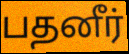
பதனீர்